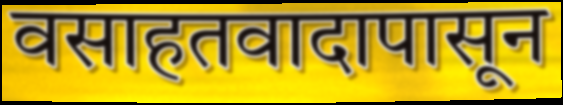
वसाहतवादापासून